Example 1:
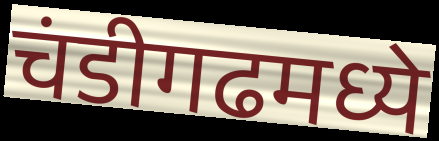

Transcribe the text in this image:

चंडीगढमध्ये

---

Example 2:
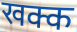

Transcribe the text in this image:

खक्क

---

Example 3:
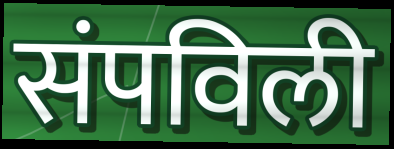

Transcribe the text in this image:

संपविली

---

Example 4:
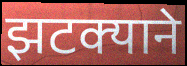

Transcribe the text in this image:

झटक्याने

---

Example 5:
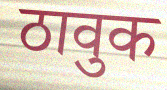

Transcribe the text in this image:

ठावुक